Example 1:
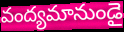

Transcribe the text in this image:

వంద్యమానుండై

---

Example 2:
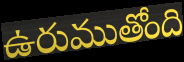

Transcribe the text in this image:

ఉరుముతోంది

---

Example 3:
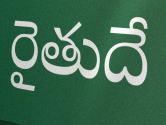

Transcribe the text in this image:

రైతుదే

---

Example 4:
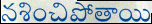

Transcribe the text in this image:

నశించిపోతాయి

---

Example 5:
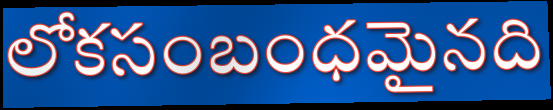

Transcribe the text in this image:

లోకసంబంధమైనది